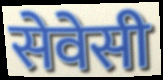
सेवेसी